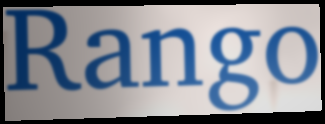
Rango